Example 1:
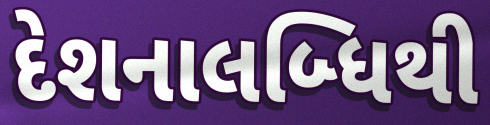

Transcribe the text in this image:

દેશનાલબ્ધિથી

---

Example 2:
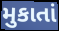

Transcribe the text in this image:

મુકાતાં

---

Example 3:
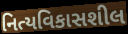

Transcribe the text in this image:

નિત્યવિકાસશીલ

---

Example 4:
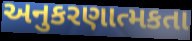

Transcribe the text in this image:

અનુકરણાત્મકતા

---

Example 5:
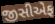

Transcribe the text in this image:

જીસીએફ